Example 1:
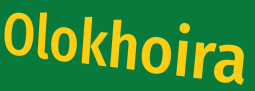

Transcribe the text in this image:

Olokhoira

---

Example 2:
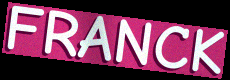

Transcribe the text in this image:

FRANCK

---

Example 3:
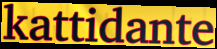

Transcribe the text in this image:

kattidante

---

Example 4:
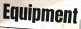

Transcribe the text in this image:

Equipment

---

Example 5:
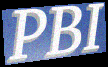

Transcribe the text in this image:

PBI